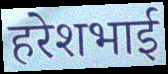
हरेशभाई